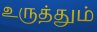
உருத்தும்